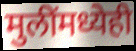
मुलींमध्येही